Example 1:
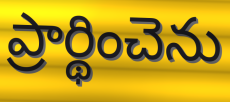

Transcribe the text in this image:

ప్రార్థించెను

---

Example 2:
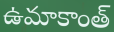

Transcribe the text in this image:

ఉమాకాంత్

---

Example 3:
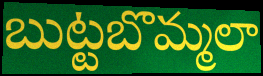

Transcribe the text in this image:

బుట్టబొమ్మలా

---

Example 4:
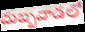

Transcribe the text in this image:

దుబ్బవాడలో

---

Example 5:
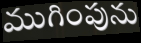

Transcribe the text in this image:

ముగింపును